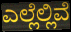
ಎಲ್ಲೆಲ್ಲಿವೆ